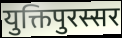
युक्तिपुरस्सर